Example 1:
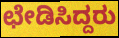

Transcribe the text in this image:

ಛೇಡಿಸಿದ್ದರು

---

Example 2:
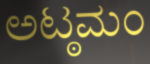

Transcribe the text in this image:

ಅಟ್ಠಮಂ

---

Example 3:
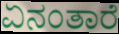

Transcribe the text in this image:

ಏನಂತಾರೆ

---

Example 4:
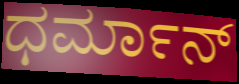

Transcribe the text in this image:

ಧರ್ಮಾನ್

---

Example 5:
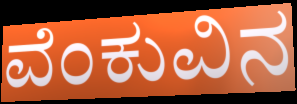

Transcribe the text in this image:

ವೆಂಕುವಿನ